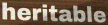
heritable